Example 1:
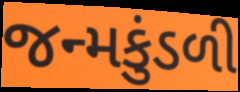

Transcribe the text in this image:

જન્મકુંડળી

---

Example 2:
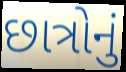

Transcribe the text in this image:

છાત્રોનું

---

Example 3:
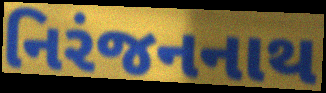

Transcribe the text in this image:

નિરંજનનાથ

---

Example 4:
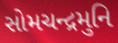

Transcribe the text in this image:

સોમચન્દ્રમુનિ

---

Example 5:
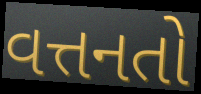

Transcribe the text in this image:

વત્તનતો